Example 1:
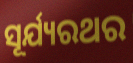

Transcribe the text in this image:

ସୂର୍ଯ୍ୟରଥର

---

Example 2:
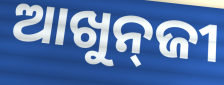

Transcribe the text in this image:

ଆଖୁନ୍‍ଜୀ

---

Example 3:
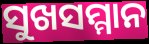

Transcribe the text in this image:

ସୁଖସମ୍ମାନ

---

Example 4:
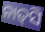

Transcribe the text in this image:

ନାତ୍‌ସି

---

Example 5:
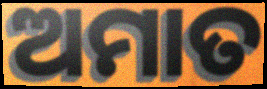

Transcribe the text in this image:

ଅମାତ